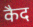
कैद